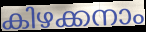
കിഴക്കനാം